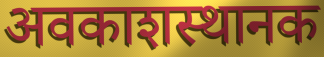
अवकाशस्थानक